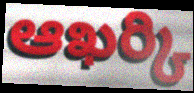
ఆఖర్కి